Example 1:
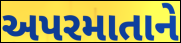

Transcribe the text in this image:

અપરમાતાને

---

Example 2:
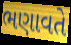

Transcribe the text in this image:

ભણાવતે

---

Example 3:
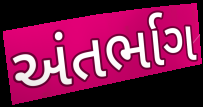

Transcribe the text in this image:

અંતર્ભાગ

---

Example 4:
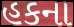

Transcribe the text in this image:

હકના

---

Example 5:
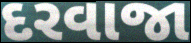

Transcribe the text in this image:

દરવાજા